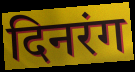
दिनरंग